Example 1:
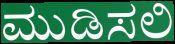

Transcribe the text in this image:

ಮುಡಿಸಲಿ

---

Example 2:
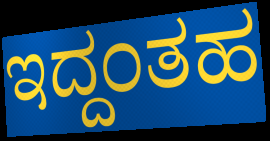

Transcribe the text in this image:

ಇದ್ದಂತಹ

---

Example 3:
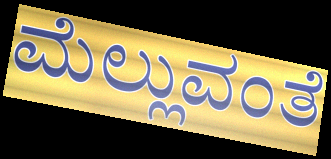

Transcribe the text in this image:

ಮೆಲ್ಲುವಂತೆ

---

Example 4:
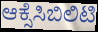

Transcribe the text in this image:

ಆಕ್ಸೆಸಿಬಿಲಿಟಿ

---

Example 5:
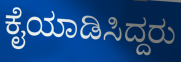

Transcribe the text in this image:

ಕೈಯಾಡಿಸಿದ್ದರು